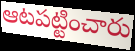
ఆటపట్టించారు